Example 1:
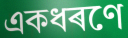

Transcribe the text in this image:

একধৰণে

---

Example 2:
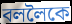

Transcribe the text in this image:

বললৈকে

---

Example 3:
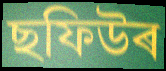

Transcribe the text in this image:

ছফিউৰ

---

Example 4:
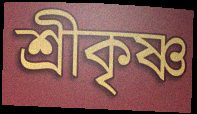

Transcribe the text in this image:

শ্ৰীকৃষ্ণ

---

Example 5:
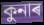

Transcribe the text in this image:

কুনাৰ